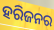
ହରିଜନର